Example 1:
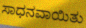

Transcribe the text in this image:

ಸಾಧನವಾಯಿತು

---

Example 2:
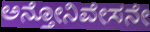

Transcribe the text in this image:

ಅನ್ತೋನಿವೇಸನೇ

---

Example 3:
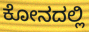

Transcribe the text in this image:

ಕೋನದಲ್ಲಿ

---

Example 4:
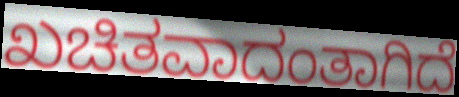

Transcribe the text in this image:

ಖಚಿತವಾದಂತಾಗಿದೆ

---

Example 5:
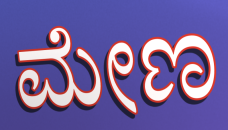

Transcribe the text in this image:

ಮೇಣ